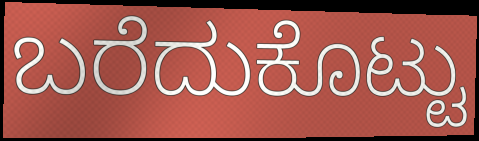
ಬರೆದುಕೊಟ್ಟು